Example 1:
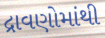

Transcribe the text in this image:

દ્રાવણોમાંથી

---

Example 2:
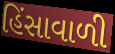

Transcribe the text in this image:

હિંસાવાળી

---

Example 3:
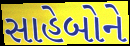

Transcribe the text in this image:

સાહેબોને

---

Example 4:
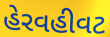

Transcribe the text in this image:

હેરવહીવટ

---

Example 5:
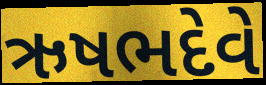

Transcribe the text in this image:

ઋષભદેવે